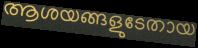
ആശയങ്ങളുടേതായ